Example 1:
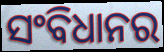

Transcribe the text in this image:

ସଂବିଧାନର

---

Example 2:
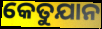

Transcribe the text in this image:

କେତୁଯାନ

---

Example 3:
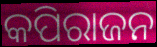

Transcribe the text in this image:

କପିରାଜନ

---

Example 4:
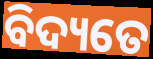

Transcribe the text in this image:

ବିଦ୍ୟତେ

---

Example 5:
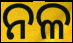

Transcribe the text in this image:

ନଳ